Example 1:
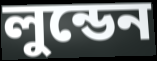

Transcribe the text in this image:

লুন্ডেন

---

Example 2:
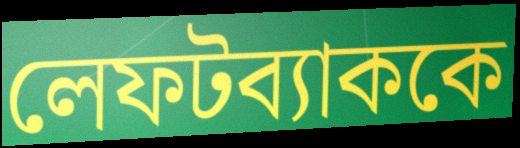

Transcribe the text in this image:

লেফটব্যাককে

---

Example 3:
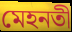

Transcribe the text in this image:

মেহনতী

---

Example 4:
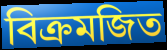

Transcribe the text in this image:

বিক্রমজিত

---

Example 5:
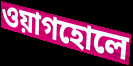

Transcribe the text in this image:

ওয়াগহোলে